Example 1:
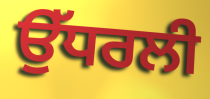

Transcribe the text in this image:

ਉੱਧਰਲੀ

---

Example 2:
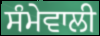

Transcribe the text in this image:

ਸੰਮੇਵਾਲੀ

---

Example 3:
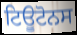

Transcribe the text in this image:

ਟਿਊਟੋਨਸ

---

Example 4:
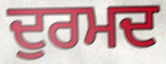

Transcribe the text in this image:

ਦੁਰਮਦ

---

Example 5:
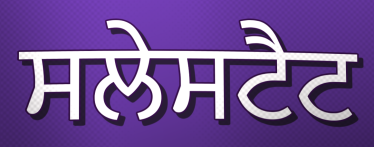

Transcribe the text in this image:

ਸਲੇਸਟੈਟ